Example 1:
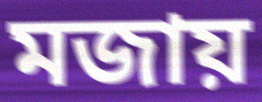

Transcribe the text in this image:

মজায়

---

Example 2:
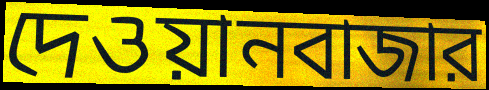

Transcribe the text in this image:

দেওয়ানবাজার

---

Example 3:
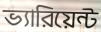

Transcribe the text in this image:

ভ্যারিয়েন্ট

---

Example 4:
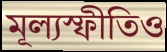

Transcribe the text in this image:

মূল্যস্ফীতিও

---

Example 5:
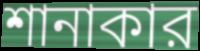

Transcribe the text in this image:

শানাকার